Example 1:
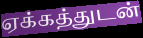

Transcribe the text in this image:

ஏக்கத்துடன்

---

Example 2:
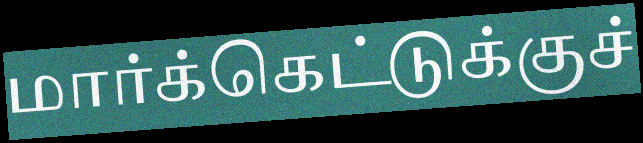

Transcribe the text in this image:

மார்க்கெட்டுக்குச்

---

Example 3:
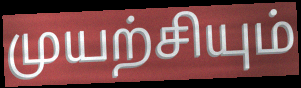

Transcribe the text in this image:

முயற்சியும்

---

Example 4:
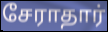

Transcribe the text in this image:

சேராதார்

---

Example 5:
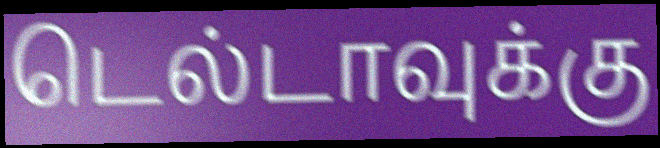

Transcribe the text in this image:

டெல்டாவுக்கு